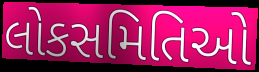
લોકસમિતિઓ